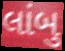
લાંબુ